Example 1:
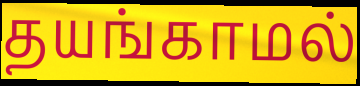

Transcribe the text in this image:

தயங்காமல்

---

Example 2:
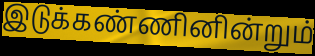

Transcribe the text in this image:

இடுக்கண்ணினின்றும்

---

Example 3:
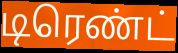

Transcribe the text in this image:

டிரெண்ட்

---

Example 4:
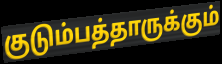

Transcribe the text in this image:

குடும்பத்தாருக்கும்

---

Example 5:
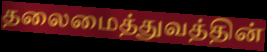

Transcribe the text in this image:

தலைமைத்துவத்தின்